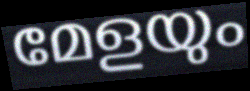
മേളയും